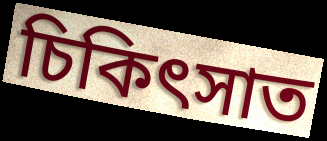
চিকিৎসাত